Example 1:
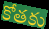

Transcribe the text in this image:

కోతకు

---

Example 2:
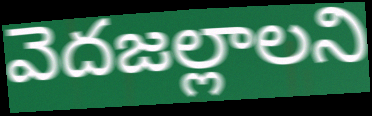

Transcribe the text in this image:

వెదజల్లాలని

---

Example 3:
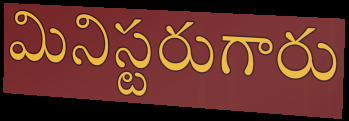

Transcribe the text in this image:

మినిస్టరుగారు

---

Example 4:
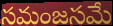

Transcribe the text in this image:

సమంజసమే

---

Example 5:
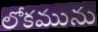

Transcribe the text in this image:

లోకమును